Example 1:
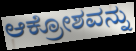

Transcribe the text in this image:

ಆಕ್ರೋಶವನ್ನು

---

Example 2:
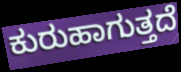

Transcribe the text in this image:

ಕುರುಹಾಗುತ್ತದೆ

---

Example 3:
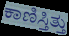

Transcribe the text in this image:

ಕಾಣಿಸ್ತಿತ್ತು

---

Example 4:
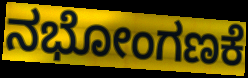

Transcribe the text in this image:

ನಭೋಂಗಣಕೆ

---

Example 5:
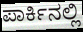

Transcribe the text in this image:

ಪಾರ್ಕಿನಲ್ಲಿ